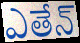
ఎతేన్